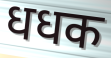
धधक